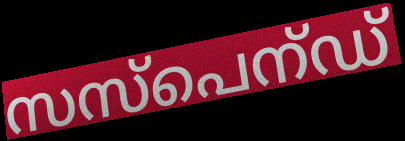
സസ്പെന്ഡ്